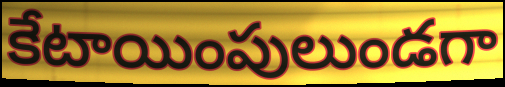
కేటాయింపులుండగా